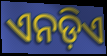
ଏନଡ଼ିଏ